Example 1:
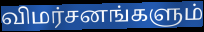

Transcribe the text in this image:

விமர்சனங்களும்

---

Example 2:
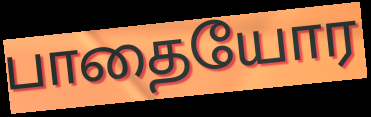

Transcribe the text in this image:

பாதையோர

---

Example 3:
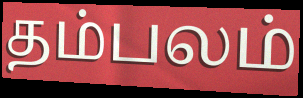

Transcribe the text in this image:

தம்பலம்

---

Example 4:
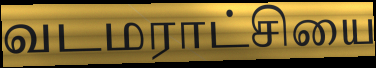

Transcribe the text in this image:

வடமராட்சியை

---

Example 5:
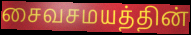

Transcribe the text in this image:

சைவசமயத்தின்